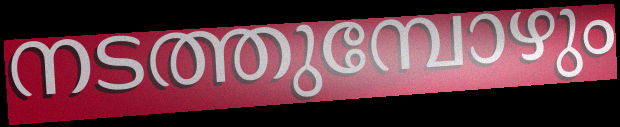
നടത്തുമ്പോഴും